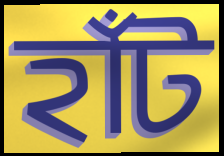
হাঁট